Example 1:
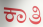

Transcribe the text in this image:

ಕಾತಿ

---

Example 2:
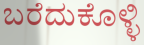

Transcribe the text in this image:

ಬರೆದುಕೊಳ್ಳಿ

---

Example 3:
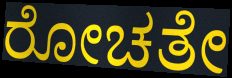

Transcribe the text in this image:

ರೋಚತೇ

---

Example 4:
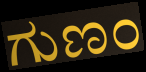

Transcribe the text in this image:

ಗುಣಂ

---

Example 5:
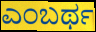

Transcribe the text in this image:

ಎಂಬರ್ಥ